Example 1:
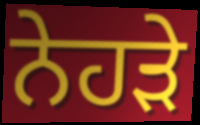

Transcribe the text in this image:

ਨੇਹੜੇ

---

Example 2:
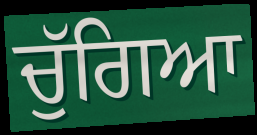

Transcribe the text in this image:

ਚੁੱਗਿਆ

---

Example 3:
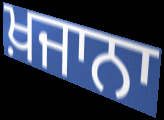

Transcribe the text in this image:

ਖ਼ਜਾਨਾ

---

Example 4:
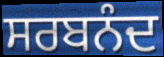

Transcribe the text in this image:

ਸਰਬਨੰਦ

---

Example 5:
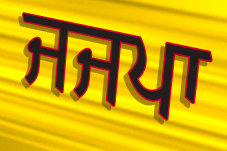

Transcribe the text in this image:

ਜਜਪਾ